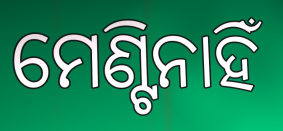
ମେଣ୍ଟିନାହିଁ